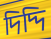
দিদ্দি